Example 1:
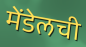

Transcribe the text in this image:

मेंडेलची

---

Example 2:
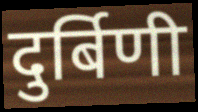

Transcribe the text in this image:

दुर्बिणी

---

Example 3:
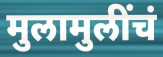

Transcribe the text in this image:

मुलामुलींचं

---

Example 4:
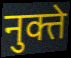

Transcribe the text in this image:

नुक्ते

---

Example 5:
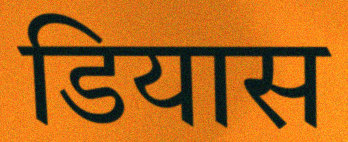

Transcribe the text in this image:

डियास